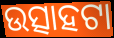
ଉତ୍ସାହଟା